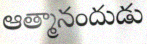
ఆత్మానందుడు